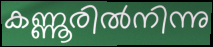
കണ്ണൂരിൽനിന്നു